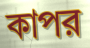
কাপর